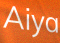
Aiya